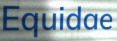
Equidae